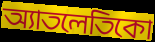
অ্যাতলেতিকো